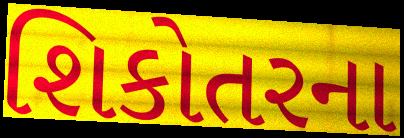
શિકોતરના